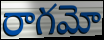
రాగమో